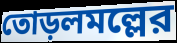
তোড়লমল্লের